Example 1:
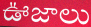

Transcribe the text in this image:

ఊజాలు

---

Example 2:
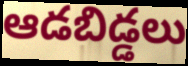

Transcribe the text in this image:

ఆడబిడ్డలు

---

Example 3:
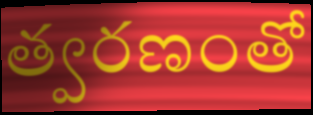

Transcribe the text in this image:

త్వరణంతో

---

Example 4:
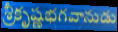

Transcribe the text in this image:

శ్రీకృష్ణభగవానుడు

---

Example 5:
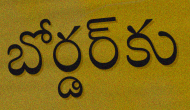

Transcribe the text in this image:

బోర్డర్‌కు